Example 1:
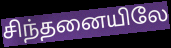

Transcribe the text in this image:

சிந்தனையிலே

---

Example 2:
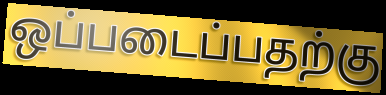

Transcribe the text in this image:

ஒப்படைப்பதற்கு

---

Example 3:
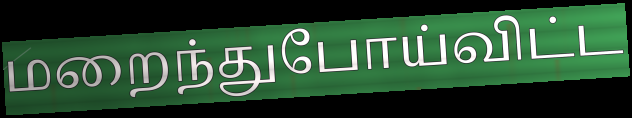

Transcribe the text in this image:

மறைந்துபோய்விட்ட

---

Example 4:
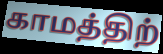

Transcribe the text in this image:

காமத்திற்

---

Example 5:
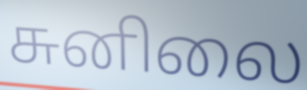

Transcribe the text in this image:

சுனிலை